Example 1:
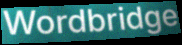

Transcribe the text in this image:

Wordbridge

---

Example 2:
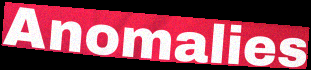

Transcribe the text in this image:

Anomalies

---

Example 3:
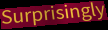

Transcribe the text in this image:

Surprisingly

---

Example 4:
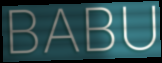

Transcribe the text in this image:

BABU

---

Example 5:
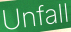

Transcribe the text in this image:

Unfall